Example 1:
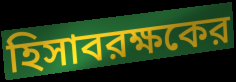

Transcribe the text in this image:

হিসাবরক্ষকের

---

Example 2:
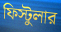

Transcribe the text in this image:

ফিস্টুলার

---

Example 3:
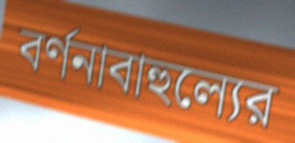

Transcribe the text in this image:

বর্ণনাবাহুল্যের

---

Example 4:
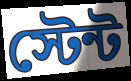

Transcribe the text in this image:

স্টেন্ট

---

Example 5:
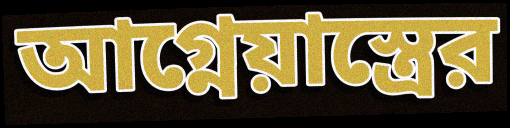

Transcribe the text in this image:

আগ্নেয়াস্ত্রের